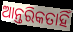
ଆନ୍ତରିକତାହିଁ